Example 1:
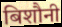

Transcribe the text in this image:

बिशौनी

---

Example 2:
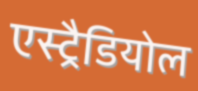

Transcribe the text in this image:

एस्ट्रैडियोल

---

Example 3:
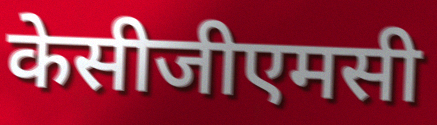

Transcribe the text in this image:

केसीजीएमसी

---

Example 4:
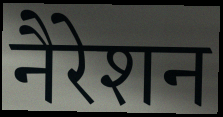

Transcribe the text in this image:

नैरेशन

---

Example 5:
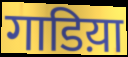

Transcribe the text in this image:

गाडिय़ा